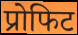
प्रोफिट